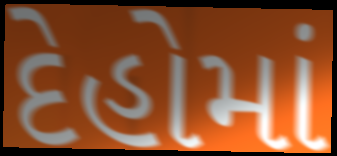
દેહોમાં